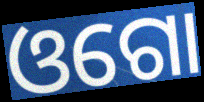
ଓଗୋ